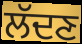
ਲੱਦਣ